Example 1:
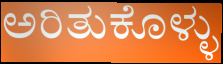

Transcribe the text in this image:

ಅರಿತುಕೊಳ್ಳು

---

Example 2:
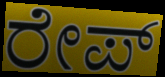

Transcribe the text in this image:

ರೇಪ್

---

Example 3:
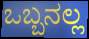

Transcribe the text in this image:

ಒಬ್ಬನಲ್ಲ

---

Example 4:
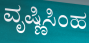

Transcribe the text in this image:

ವೃಷ್ಣಿಸಿಂಹ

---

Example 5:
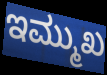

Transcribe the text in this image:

ಇಮ್ಮುಖ